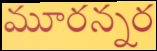
మూరన్నర